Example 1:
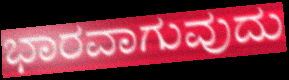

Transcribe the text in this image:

ಭಾರವಾಗುವುದು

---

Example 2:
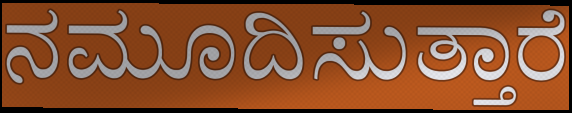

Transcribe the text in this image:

ನಮೂದಿಸುತ್ತಾರೆ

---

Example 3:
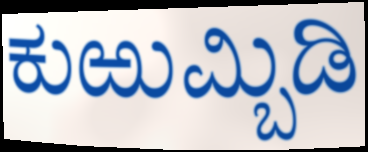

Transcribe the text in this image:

ಕುಱುಮ್ಬಿಡಿ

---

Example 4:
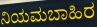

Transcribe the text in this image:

ನಿಯಮಬಾಹಿರ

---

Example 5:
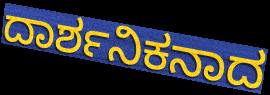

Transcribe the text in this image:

ದಾರ್ಶನಿಕನಾದ